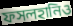
ফসলহানিও